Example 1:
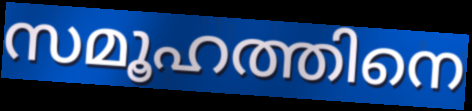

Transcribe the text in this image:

സമൂഹത്തിനെ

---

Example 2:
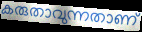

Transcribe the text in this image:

കരുതാവുന്നതാണ്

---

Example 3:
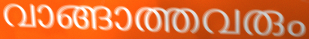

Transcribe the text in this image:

വാങ്ങാത്തവരും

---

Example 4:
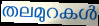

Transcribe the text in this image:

തലമുറകൾ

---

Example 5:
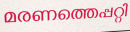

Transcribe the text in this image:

മരണത്തെപ്പറ്റി